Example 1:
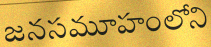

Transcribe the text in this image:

జనసమూహంలోని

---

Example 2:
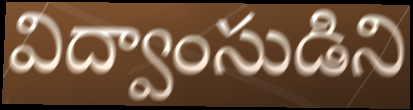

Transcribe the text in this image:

విద్వాంసుడిని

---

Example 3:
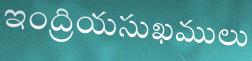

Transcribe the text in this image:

ఇంద్రియసుఖములు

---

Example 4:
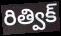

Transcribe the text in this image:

రిత్విక్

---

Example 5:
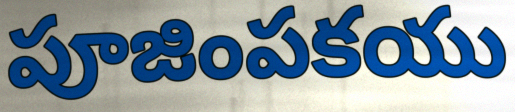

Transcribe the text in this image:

పూజింపకయు